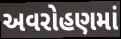
અવરોહણમાં